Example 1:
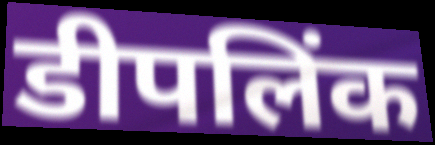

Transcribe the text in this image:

डीपलिंक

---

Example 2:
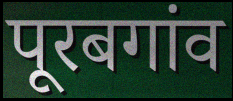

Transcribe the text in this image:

पूरबगांव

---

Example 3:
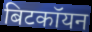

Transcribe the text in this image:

बिटकॉयन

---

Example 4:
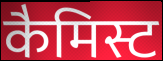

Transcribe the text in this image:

कैमिस्ट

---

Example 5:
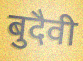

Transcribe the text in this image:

बुदैवी